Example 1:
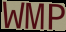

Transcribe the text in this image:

WMP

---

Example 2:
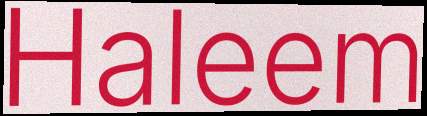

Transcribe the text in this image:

Haleem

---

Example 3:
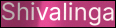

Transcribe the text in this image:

Shivalinga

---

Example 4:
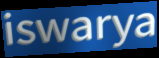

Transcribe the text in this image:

iswarya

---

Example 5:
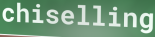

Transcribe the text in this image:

chiselling